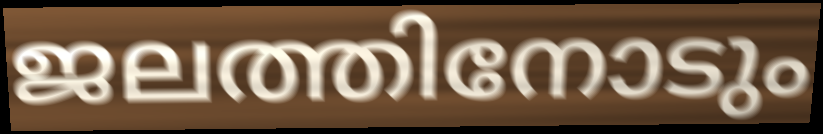
ജലത്തിനോടും